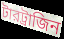
টারট্রাজিন